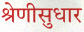
श्रेणीसुधार